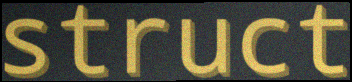
struct